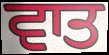
ਵਾਤ